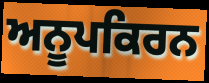
ਅਨੂਪਕਿਰਨ